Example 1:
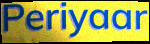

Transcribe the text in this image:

Periyaar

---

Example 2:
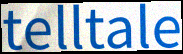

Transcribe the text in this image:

telltale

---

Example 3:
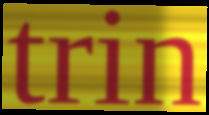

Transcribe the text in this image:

trin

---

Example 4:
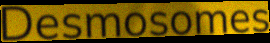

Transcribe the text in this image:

Desmosomes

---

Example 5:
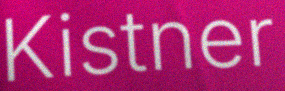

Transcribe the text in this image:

Kistner